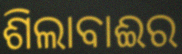
ଶିଲାବାଈର